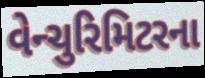
વેન્ચુરિમિટરના